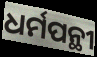
ଧର୍ମପନ୍ଥୀ